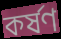
কৰ্ষণ